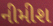
નીમીશ